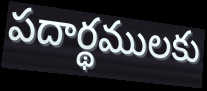
పదార్థములకు